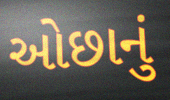
ઓછાનું